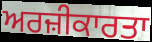
ਅਰਜ਼ੀਕਾਰਤਾ